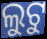
ଲୁଟୁ